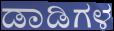
ಡಾಡಿಗಳ